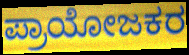
ಪ್ರಾಯೋಜಕರ